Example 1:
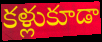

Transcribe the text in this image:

కళ్లుకూడా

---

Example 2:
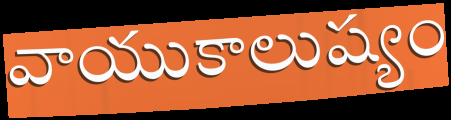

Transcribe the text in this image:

వాయుకాలుష్యం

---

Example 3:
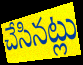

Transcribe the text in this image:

చేసినట్లు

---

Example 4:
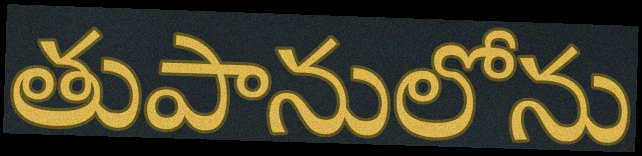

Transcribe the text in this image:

తుపానులోను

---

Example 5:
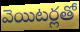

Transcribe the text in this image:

వెయిటర్లతో